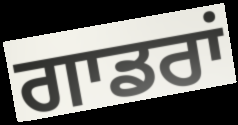
ਗਾਡਰਾਂ